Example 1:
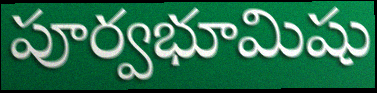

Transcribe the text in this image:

పూర్వభూమిషు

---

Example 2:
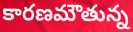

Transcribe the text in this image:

కారణమౌతున్న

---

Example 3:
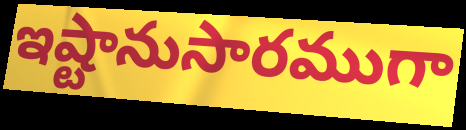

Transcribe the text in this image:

ఇష్టానుసారముగా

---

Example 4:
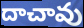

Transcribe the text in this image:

దాచావు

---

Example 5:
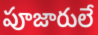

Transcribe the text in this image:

పూజారులే